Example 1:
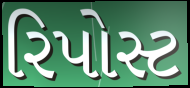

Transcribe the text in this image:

રિપોસ્ટ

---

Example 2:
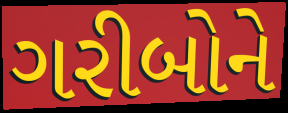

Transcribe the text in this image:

ગરીબોને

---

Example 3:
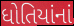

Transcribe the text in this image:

ધોતિયાંનાં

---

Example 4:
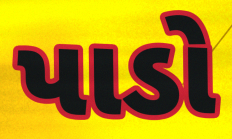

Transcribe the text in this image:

પાડો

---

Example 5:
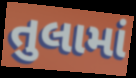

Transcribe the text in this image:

તુલામાં